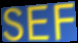
SEF